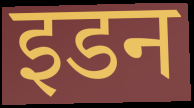
इडन